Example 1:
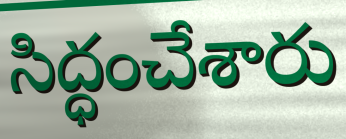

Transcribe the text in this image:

సిద్ధంచేశారు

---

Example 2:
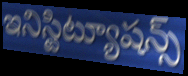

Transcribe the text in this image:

ఇనిస్టిట్యూషన్స్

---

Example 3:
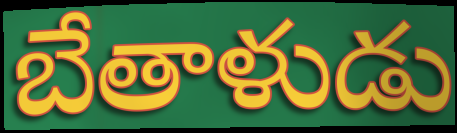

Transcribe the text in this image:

బేతాళుడు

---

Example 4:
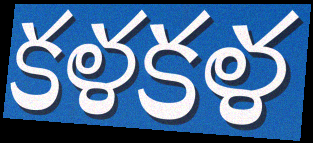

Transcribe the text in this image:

కళకళ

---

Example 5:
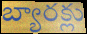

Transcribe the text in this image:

బ్యారక్లు